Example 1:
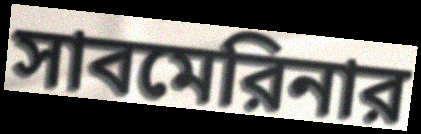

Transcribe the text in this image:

সাবমেরিনার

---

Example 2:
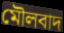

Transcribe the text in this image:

মৌলবাদ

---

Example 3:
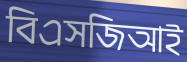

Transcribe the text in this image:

বিএসজিআই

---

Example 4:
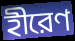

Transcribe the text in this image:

হীরেণ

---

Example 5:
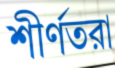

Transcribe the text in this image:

শীর্ণতরা